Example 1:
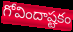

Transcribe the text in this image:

గోవిందాష్టకం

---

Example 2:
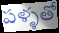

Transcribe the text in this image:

పళ్ళతో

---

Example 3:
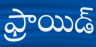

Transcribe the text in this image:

ఫ్రాయిడ్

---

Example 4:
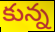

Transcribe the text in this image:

కున్న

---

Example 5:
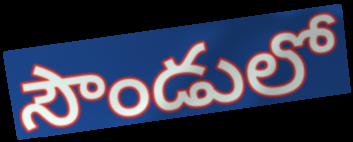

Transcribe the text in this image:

సౌండులో